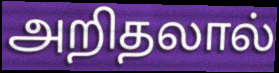
அறிதலால்